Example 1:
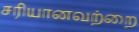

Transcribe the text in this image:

சரியானவற்றை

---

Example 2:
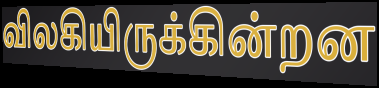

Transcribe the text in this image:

விலகியிருக்கின்றன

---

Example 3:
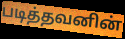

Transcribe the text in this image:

படித்தவனின்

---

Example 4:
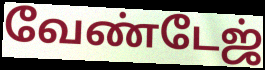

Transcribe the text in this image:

வேண்டேஜ்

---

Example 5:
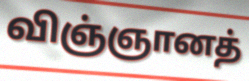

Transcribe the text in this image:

விஞ்ஞானத்